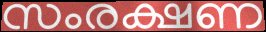
സംരക്ഷണ